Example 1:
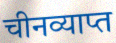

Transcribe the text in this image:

चीनव्याप्त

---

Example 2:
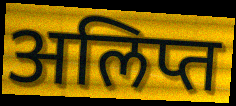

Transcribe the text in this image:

अलिप्त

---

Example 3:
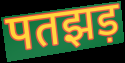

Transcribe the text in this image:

पतझड़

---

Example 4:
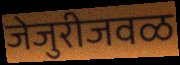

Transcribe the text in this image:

जेजुरीजवळ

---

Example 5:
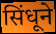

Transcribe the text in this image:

सिंधूने